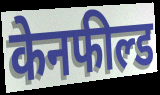
केनफील्ड